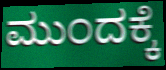
ಮುಂದಕ್ಕೆ